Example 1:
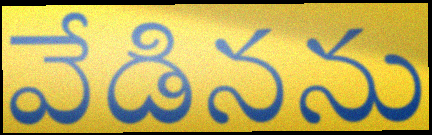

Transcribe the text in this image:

వేడినను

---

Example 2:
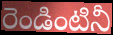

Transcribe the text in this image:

రెండింటినీ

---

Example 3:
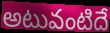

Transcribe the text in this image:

అటువంటిదే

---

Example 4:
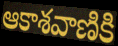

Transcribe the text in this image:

ఆకాశవాణికి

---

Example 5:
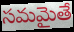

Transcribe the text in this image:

సమమైతే